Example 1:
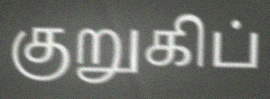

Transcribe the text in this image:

குறுகிப்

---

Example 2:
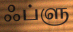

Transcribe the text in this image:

ஃப்ளு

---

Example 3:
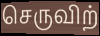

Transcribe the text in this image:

செருவிற்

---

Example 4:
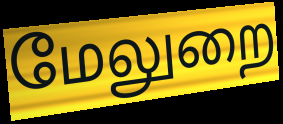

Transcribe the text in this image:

மேலுறை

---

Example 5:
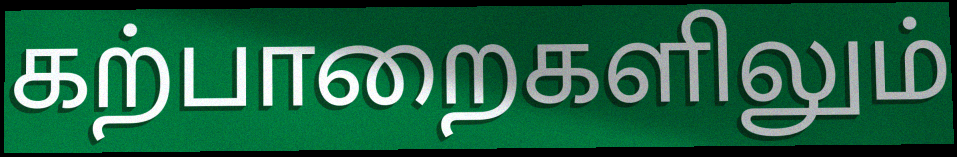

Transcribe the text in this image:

கற்பாறைகளிலும்